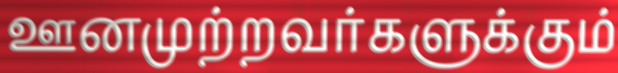
ஊனமுற்றவர்களுக்கும்